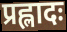
प्रह्लादः